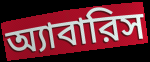
অ্যাবারিস